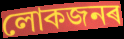
লোকজনৰ